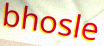
bhosle